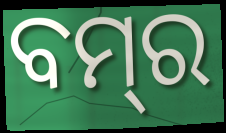
ବମ୍‌ର